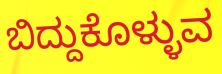
ಬಿದ್ದುಕೊಳ್ಳುವ